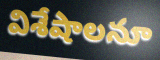
విశేషాలనూ